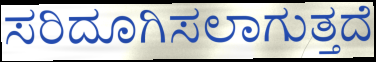
ಸರಿದೂಗಿಸಲಾಗುತ್ತದೆ